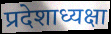
प्रदेशाध्यक्षा